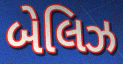
બેલિઝ